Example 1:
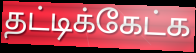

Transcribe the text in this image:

தட்டிக்கேட்க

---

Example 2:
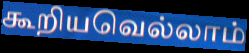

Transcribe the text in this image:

கூறியவெல்லாம்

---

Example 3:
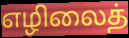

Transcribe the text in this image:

எழிலைத்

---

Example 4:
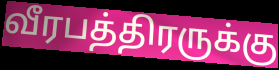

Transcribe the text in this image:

வீரபத்திரருக்கு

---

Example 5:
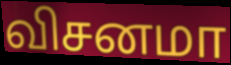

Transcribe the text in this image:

விசனமா